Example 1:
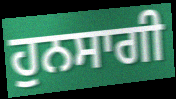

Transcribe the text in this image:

ਹੁਨਸਾਗੀ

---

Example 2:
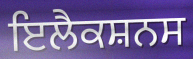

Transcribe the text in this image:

ਇਲੈਕਸ਼ਨਸ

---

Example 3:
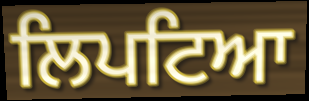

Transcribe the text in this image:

ਲਿਪਟਿਆ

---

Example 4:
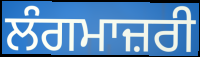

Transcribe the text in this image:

ਲੰਗਮਾਜ਼ਰੀ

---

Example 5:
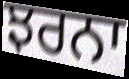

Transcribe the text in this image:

ਝਰਨਾ